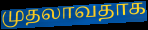
முதலாவதாக